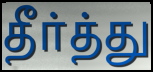
தீர்த்து